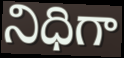
నిధిగా